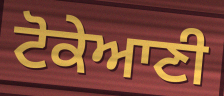
ਟੋਕੇਆਣੀ